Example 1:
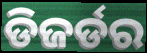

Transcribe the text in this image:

ଡିଜର୍ଡର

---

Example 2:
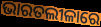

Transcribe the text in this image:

ଭାରତଲୀଳାରେ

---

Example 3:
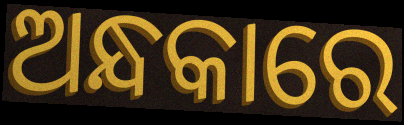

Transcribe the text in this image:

ଅନ୍ଧକାରେ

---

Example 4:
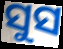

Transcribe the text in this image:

ସୁସ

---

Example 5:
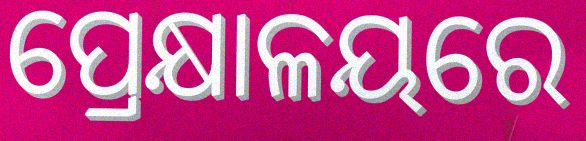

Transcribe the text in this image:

ପ୍ରେକ୍ଷାଳୟରେ